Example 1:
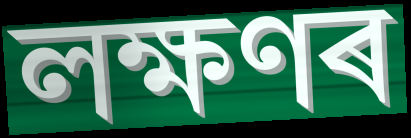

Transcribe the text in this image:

লক্ষণৰ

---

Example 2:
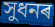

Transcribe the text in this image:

সুধনৰ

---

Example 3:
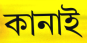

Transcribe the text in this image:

কানাই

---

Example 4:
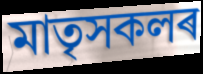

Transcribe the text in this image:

মাতৃসকলৰ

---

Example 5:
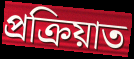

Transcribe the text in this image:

প্ৰক্ৰিয়াত